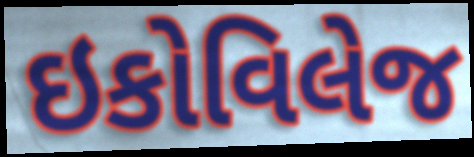
ઇકોવિલેજ